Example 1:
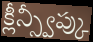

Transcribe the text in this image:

క్లీన్స్వీప్కు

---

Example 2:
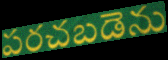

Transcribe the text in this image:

పరచబడెను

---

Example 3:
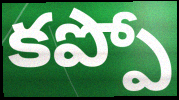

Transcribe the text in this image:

కప్పో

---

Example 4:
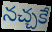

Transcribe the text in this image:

నచ్చకే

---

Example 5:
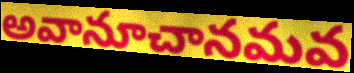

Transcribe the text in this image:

అవానూచానమవ